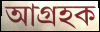
আগ্ৰহক